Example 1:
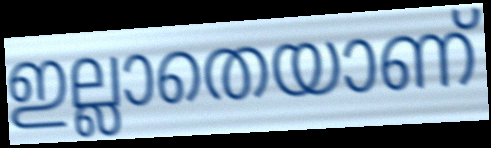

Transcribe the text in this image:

ഇല്ലാതെയാണ്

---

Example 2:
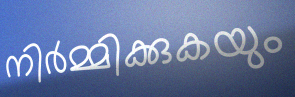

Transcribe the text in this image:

നിർമ്മിക്കുകയും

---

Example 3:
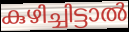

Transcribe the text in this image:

കുഴിച്ചിട്ടാൽ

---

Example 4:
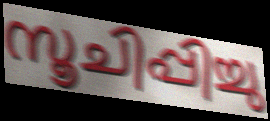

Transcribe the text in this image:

സൂചിപ്പിച്ചു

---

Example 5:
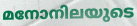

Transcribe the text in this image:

മനോനിലയുടെ